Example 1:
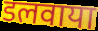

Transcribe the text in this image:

डलवाया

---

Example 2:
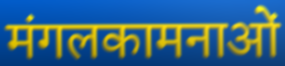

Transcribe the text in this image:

मंगलकामनाओं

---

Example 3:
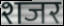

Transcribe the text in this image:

शजर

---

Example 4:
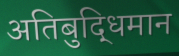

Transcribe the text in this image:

अतिबुद्धिमान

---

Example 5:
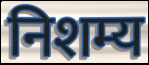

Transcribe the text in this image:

निशम्य